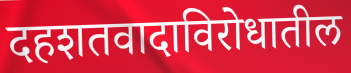
दहशतवादाविरोधातील